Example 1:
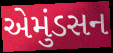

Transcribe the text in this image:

એમુંડસન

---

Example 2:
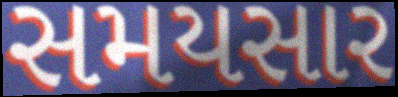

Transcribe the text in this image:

સમયસાર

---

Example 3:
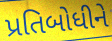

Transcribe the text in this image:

પ્રતિબોધીને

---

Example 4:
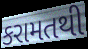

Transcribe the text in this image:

કરામતથી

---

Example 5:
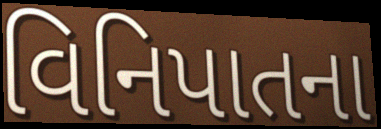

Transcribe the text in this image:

વિનિપાતના